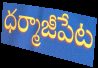
ధర్మాజీపేట